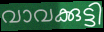
വാവക്കുട്ടി